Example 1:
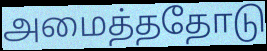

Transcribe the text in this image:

அமைத்ததோடு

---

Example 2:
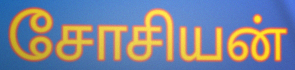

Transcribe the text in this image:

சோசியன்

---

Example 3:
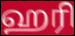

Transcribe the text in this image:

ஹரி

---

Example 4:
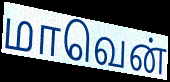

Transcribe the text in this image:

மாவென்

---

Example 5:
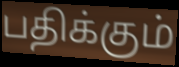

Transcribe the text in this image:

பதிக்கும்